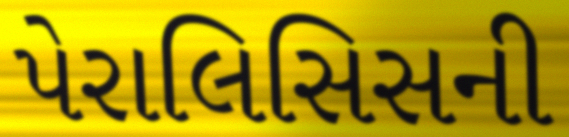
પેરાલિસિસની